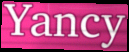
Yancy